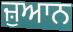
ਜ਼ੁਆਨ